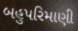
બહુપરિમાણી